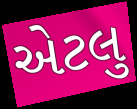
એટલુ